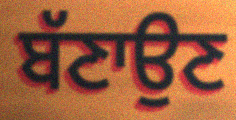
ਬੱਣਾਉਣ